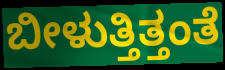
ಬೀಳುತ್ತಿತ್ತಂತೆ